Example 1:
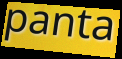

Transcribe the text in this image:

panta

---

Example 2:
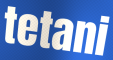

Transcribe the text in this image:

tetani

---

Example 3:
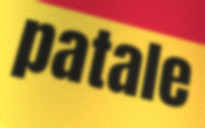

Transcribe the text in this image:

patale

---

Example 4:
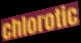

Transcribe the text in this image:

chlorotic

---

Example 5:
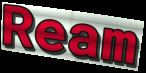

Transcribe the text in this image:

Ream